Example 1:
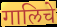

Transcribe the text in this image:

गालिचे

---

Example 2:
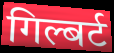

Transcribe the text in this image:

गिल्बर्ट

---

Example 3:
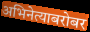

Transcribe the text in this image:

अभिनेत्याबरोबर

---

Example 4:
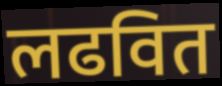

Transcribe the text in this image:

लढवित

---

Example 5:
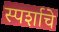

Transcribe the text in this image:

स्पर्शाचे